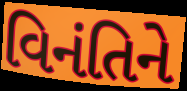
વિનંતિને